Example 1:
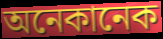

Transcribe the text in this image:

অনেকানেক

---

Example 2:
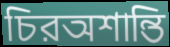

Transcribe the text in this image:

চিরঅশান্তি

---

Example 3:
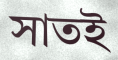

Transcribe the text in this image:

সাতই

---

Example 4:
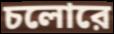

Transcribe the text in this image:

চলোরে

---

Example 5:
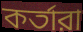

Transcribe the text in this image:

কর্তারা